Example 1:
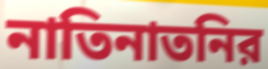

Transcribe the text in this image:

নাতিনাতনির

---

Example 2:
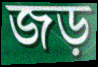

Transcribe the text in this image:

জড়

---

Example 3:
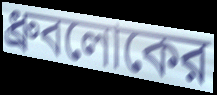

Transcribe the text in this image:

ধ্রুবলোকের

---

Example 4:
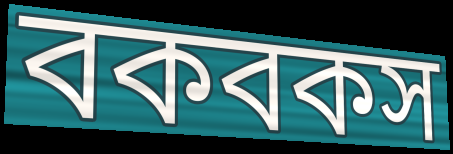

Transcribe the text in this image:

বকবকস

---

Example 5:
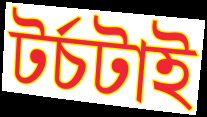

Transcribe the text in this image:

টর্চটাই